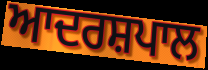
ਆਦਰਸ਼ਪਾਲ